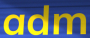
adm